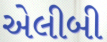
એલીબી